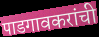
पाडगावकरांची